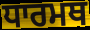
ਧਾਰਮਥ